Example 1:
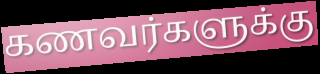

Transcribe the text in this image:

கணவர்களுக்கு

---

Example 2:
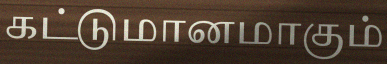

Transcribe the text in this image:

கட்டுமானமாகும்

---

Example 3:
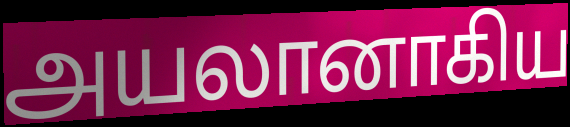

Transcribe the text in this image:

அயலானாகிய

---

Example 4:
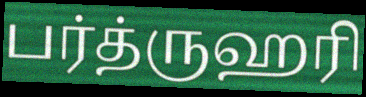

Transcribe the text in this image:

பர்த்ருஹரி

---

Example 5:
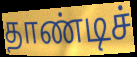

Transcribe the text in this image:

தாண்டிச்